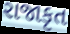
રાજાકૃત